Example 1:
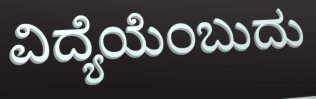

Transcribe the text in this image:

ವಿದ್ಯೆಯೆಂಬುದು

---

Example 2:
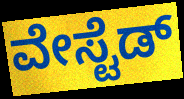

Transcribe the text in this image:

ವೇಸ್ಟೆಡ್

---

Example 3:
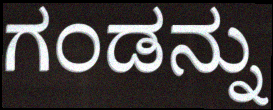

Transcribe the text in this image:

ಗಂಡನ್ನು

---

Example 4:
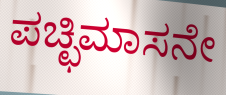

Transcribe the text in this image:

ಪಚ್ಛಿಮಾಸನೇ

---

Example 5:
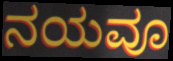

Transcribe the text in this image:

ನಯವೂ